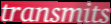
transmits